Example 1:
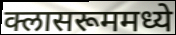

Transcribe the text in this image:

क्लासरूममध्ये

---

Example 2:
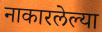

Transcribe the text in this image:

नाकारलेल्या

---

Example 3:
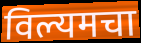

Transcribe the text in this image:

विल्यमचा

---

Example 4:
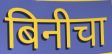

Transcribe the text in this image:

बिनीचा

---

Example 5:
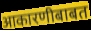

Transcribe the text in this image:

आकारणीबाबत